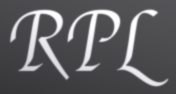
RPL